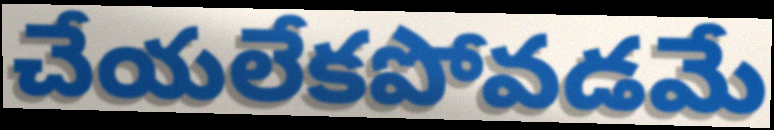
చేయలేకపోవడమే